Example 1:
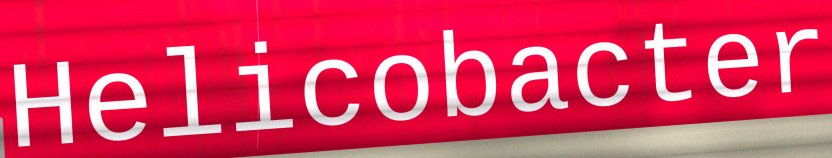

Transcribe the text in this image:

Helicobacter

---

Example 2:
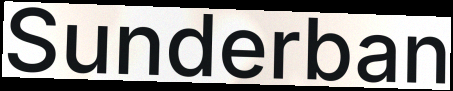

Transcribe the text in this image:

Sunderban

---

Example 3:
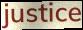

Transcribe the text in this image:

justice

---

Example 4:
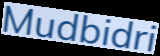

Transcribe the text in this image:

Mudbidri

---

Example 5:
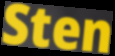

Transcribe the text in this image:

Sten